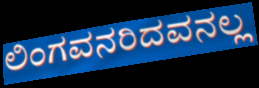
ಲಿಂಗವನರಿದವನಲ್ಲ